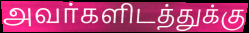
அவர்களிடத்துக்கு